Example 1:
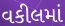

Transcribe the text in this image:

વકીલમાં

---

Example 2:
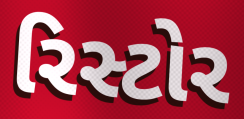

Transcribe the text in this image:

રિસ્ટોર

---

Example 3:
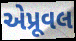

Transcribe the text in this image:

એપ્રૂવલ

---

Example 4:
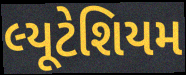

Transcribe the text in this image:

લ્યૂટેશિયમ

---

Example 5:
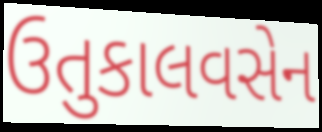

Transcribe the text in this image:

ઉતુકાલવસેન